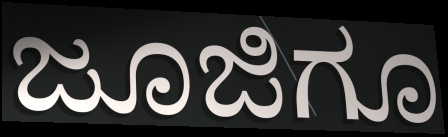
ಜೂಜಿಗೂ